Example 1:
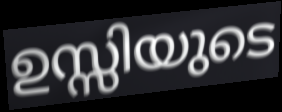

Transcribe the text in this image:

ഉസ്സിയുടെ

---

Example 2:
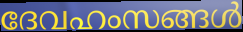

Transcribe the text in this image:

ദേവഹംസങ്ങൾ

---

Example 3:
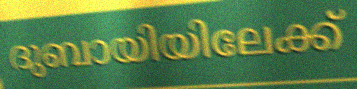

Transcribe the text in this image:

ദുബായിയിലേക്ക്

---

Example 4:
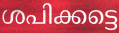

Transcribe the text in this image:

ശപിക്കട്ടെ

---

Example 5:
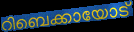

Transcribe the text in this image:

റിബെക്കായോട്